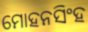
ମୋହନସିଂହ